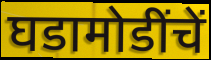
घडामोडींचें